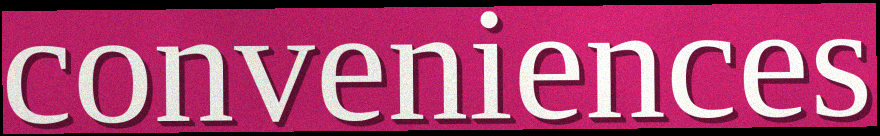
conveniences